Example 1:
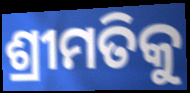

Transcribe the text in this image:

ଶ୍ରୀମତିକୁ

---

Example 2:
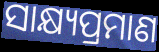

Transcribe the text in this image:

ସାକ୍ଷ୍ୟପ୍ରମାଣ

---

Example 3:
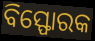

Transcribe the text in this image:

ବିସ୍ଫୋରକ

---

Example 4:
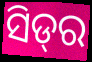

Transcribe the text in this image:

ସିଡ୍‌ର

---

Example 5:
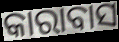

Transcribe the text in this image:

କାରାବାସ